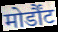
मोर्डौंट